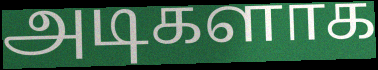
அடிகளாக